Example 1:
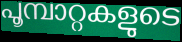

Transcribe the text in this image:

പൂമ്പാറ്റകളുടെ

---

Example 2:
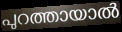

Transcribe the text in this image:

പുറത്തായാൽ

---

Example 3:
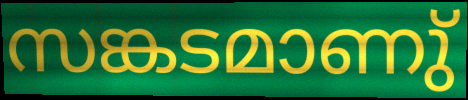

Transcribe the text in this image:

സങ്കടമാണു്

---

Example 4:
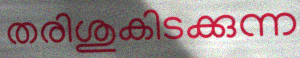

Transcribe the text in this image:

തരിശുകിടക്കുന്ന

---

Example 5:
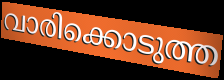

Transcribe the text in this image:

വാരിക്കൊടുത്ത